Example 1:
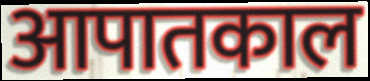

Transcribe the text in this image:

आपातकाल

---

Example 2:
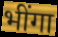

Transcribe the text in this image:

भींगा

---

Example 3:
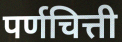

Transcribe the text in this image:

पर्णचित्ती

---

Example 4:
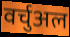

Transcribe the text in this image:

वर्चुअल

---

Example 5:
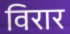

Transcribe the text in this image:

विरार